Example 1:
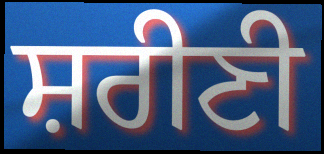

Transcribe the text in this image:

ਸ਼ਰੀਣੀ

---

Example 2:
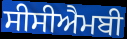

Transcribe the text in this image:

ਸੀਸੀਐਮਬੀ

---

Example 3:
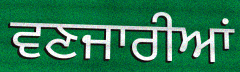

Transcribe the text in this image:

ਵਣਜਾਰੀਆਂ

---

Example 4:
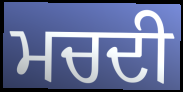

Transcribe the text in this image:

ਮਚਦੀ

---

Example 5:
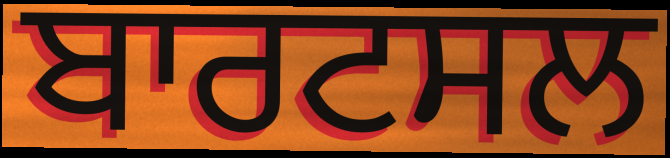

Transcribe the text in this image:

ਬਾਰਟਸਲ